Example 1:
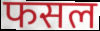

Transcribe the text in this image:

फसल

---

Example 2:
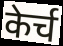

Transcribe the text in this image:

केर्च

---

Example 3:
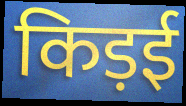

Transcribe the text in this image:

किड़ई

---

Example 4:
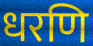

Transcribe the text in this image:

धरणि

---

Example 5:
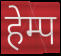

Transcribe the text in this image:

हेम्प